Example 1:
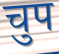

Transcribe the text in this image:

चुप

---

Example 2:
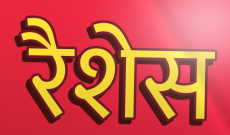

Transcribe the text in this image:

रैशेस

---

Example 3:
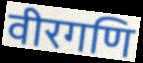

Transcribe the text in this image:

वीरगणि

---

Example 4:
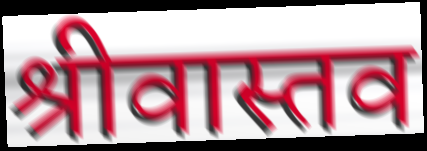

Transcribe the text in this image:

श्रीवास्तव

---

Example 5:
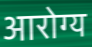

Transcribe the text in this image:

आरोग्य